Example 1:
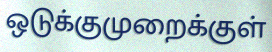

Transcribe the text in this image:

ஒடுக்குமுறைக்குள்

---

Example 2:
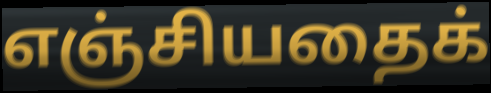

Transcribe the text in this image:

எஞ்சியதைக்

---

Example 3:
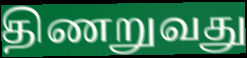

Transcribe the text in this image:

திணறுவது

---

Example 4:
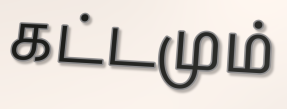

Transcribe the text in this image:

கட்டமும்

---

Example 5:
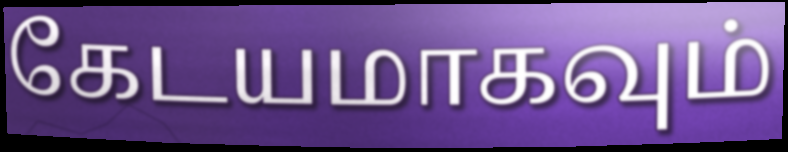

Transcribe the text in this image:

கேடயமாகவும்